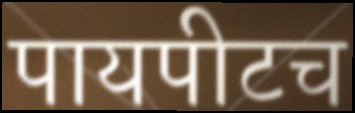
पायपीटच